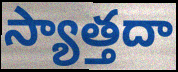
స్యాత్తదా